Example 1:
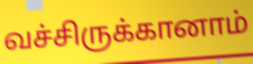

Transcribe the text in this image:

வச்சிருக்கானாம்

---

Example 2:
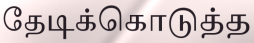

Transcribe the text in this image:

தேடிக்கொடுத்த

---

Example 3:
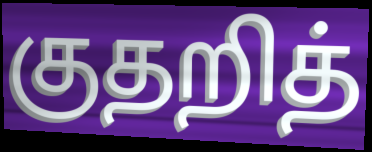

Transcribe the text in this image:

குதறித்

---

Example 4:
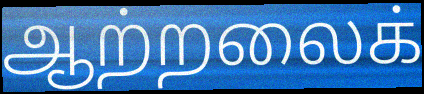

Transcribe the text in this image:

ஆற்றலைக்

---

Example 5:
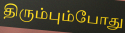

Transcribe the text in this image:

திரும்பும்போது